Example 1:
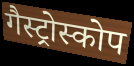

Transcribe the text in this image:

गैस्ट्रोस्कोप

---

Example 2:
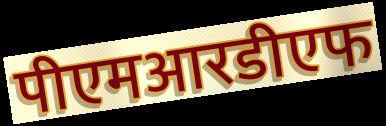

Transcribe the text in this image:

पीएमआरडीएफ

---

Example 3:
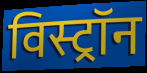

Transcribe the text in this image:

विस्ट्रॉन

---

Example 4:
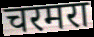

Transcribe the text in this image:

चरमरा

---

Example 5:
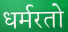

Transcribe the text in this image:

धर्मरतो